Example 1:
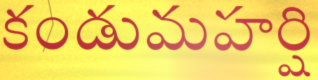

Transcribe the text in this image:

కండుమహర్షి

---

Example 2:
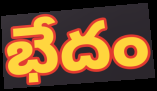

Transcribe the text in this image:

భేదం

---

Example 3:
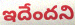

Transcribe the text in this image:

ఇదేందని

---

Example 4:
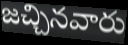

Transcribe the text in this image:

జచ్చినవారు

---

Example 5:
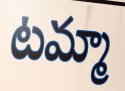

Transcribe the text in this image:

టమ్మా